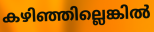
കഴിഞ്ഞില്ലെങ്കിൽ